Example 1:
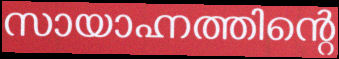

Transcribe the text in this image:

സായാഹ്നത്തിന്റെ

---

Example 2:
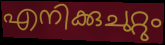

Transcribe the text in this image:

എനിക്കുചുറ്റും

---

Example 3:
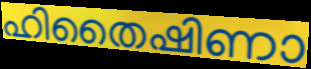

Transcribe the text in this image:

ഹിതൈഷിണാ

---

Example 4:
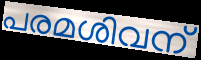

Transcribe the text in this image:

പരമശിവന്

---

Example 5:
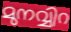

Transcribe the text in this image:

മുനവ്വിറ